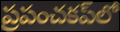
ప్రపంచకప్‌లో